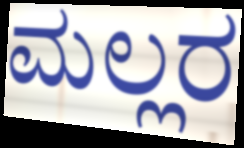
ಮಲ್ಲರ